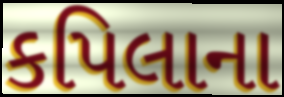
કપિલાના